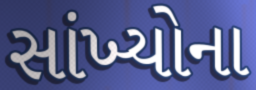
સાંખ્યોના